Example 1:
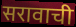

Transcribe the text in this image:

सरावाची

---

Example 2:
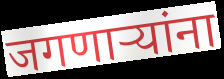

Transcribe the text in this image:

जगणाऱ्यांना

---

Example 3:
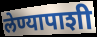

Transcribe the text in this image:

लेण्यापाशी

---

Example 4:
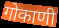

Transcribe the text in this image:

गोकाणी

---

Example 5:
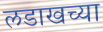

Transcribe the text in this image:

लडाखच्या